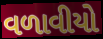
વળાવીયો